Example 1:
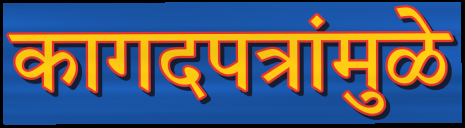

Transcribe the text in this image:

कागदपत्रांमुळे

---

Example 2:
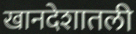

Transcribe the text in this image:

खानदेशातली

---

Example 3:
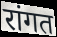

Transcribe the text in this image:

रांगत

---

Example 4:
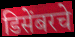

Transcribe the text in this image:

डिसेंबरचे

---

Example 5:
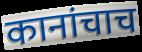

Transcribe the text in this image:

कानांचाच